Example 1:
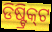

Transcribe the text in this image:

ଡିଷ୍ଟ୍ରିକ୍‌ଟ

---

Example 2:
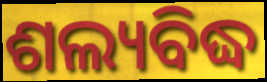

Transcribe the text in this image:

ଶଲ୍ୟବିଦ୍ଧ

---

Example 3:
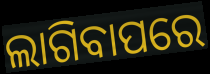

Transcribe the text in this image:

ଲାଗିବାପରେ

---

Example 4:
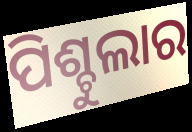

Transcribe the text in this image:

ପିଶ୍ଚୁଲାର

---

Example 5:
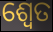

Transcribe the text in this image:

ଶ୍ଵେତ